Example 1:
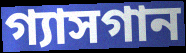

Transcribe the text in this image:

গ্যাসগান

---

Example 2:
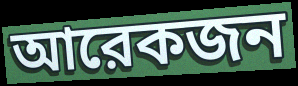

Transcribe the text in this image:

আরেকজন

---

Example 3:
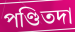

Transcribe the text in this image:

পণ্ডিতদা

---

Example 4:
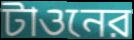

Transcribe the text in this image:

টাওনের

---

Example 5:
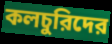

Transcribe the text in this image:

কলচুরিদের